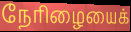
நேரிழையைக்